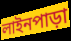
লাইনপাড়া